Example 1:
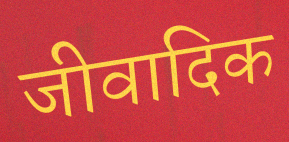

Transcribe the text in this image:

जीवादिक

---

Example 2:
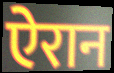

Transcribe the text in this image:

ऐरान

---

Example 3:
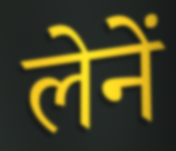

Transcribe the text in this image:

लेनें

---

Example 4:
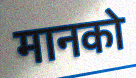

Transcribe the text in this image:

मानको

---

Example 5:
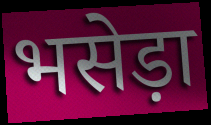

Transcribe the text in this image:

भसेड़ा